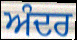
ਅੰਦਰ